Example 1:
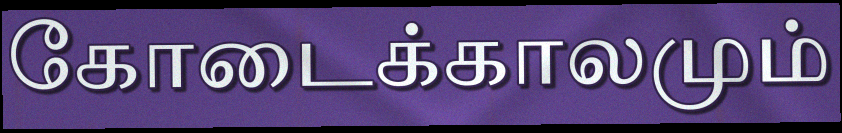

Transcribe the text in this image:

கோடைக்காலமும்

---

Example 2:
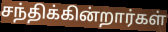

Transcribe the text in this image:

சந்திக்கின்றார்கள்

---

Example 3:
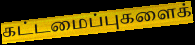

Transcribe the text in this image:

கட்டமைப்புகளைக்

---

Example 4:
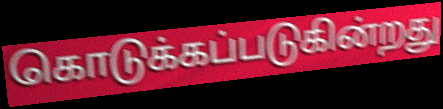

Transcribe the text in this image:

கொடுக்கப்படுகின்றது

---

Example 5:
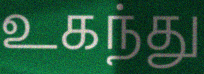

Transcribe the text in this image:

உகந்து